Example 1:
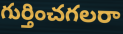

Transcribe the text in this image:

గుర్తించగలరా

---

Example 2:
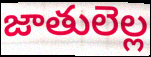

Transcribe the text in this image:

జాతులెల్ల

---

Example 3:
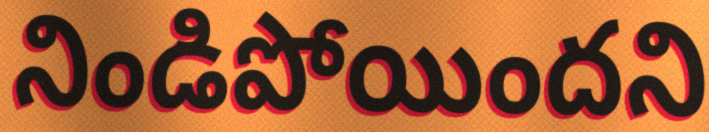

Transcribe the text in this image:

నిండిపోయిందని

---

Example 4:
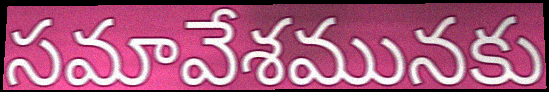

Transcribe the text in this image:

సమావేశమునకు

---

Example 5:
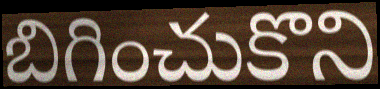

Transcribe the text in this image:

బిగించుకొని